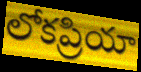
లోకప్రియా